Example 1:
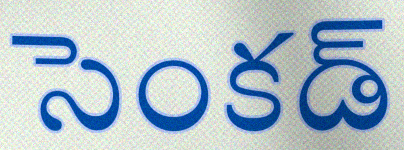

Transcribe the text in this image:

సెంకడ్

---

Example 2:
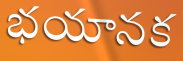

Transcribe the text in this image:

భయానక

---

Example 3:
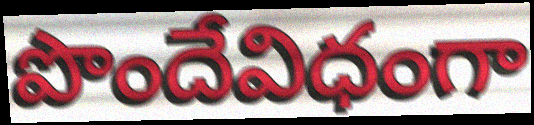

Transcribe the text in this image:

పొందేవిధంగా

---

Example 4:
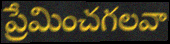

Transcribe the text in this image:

ప్రేమించగలవా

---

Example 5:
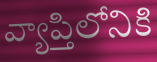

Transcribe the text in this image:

వ్యాప్తిలోనికి